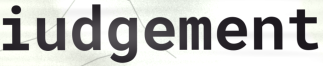
iudgement